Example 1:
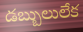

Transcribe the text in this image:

డబ్బులులేక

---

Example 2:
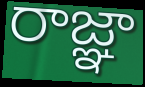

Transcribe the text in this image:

రాజ్ఞా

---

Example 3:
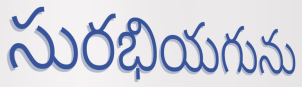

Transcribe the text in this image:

సురభియగును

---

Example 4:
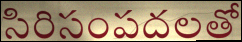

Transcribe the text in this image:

సిరిసంపదలతో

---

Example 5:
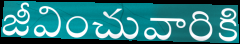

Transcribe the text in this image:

జీవించువారికి